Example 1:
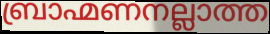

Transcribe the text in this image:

ബ്രാഹ്മണനല്ലാത്ത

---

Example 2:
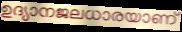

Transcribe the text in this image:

ഉദ്യാനജലധാരയാണ്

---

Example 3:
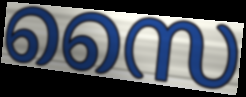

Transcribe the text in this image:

സൈ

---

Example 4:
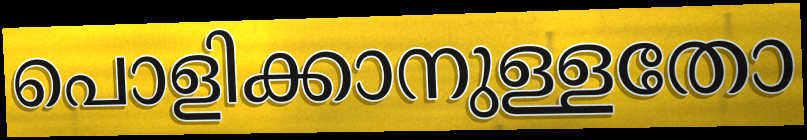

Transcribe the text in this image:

പൊളിക്കാനുള്ളതോ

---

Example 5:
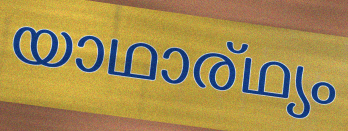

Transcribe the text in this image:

യാഥാര്ഥ്യം